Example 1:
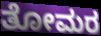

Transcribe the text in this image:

ತೋಮರ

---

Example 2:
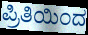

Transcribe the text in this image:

ಪ್ರಿತಿಯಿಂದ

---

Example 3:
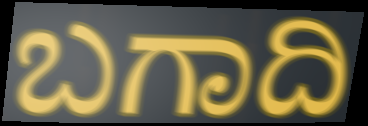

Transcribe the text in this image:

ಬಗಾದಿ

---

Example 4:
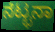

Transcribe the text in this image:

ನೆಟ್ಟನಾ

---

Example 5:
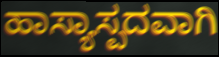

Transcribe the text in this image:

ಹಾಸ್ಯಾಸ್ಪದವಾಗಿ